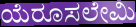
ಯೆರೂಸಲೇಮಿ